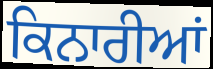
ਕਿਨਾਰੀਆਂ